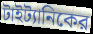
টাইট্যানিকের